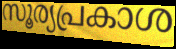
സൂര്യപ്രകാശ